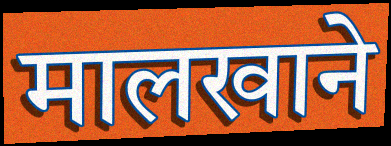
मालखाने